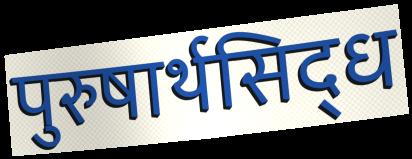
पुरुषार्थसिद्ध